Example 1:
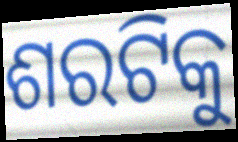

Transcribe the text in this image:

ଶରଟିକୁ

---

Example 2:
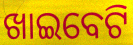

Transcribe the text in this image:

ଖାଇବେଟି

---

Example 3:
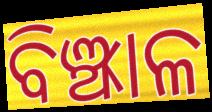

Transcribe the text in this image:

ବିଞ୍ଝାଳ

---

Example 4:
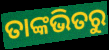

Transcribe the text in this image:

ତାଙ୍କଭିତରୁ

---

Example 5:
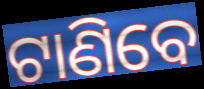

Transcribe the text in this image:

ଟାଣିବେ